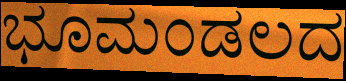
ಭೂಮಂಡಲದ